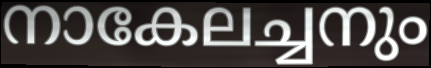
നാകേലച്ചനും